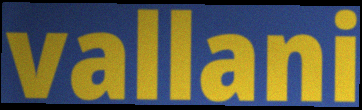
vallani